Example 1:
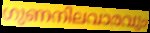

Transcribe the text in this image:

ഗുണനിലവാരവും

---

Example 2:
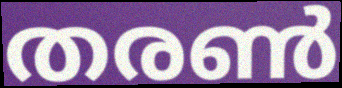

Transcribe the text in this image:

തരൺ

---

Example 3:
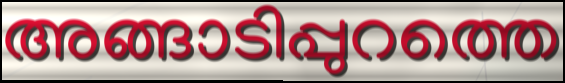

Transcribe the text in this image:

അങ്ങാടിപ്പുറത്തെ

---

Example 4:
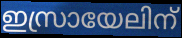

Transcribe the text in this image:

ഇസ്രായേലിന്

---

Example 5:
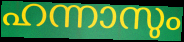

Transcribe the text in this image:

ഹന്നാസും